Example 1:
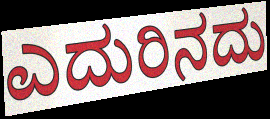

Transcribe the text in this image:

ಎದುರಿನದು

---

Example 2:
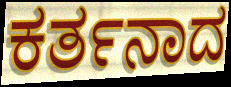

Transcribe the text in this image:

ಕರ್ತನಾದ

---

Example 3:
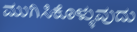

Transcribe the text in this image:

ಮುಗಿಸಿಕೊಳ್ಳುವುದು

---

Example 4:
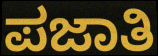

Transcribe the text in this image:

ಪಜಾತಿ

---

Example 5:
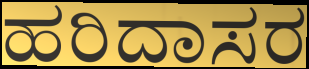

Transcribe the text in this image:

ಹರಿದಾಸರ